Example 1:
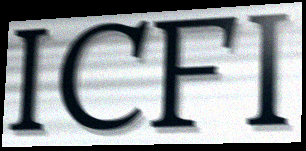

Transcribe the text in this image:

ICFI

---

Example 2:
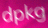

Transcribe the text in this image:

dpkg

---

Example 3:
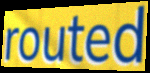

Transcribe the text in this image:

routed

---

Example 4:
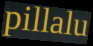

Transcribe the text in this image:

pillalu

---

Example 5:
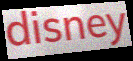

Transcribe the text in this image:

disney